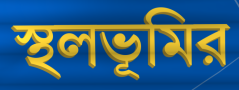
স্থলভূমির